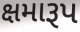
ક્ષમારૂપ